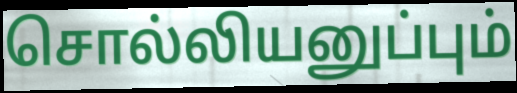
சொல்லியனுப்பும்